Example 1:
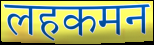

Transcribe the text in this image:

लहकमन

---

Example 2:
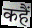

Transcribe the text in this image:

कहैं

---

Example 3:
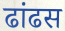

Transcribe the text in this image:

ढांढस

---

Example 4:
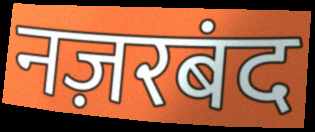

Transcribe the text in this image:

नज़रबंद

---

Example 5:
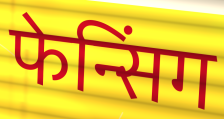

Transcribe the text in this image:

फेन्सिंग